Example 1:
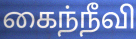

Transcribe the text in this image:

கைந்நீவி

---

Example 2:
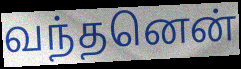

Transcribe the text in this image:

வந்தனென்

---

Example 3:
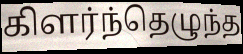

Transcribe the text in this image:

கிளர்ந்தெழுந்த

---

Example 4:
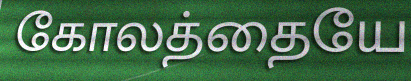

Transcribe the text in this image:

கோலத்தையே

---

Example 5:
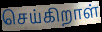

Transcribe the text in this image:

செய்கிறாள்